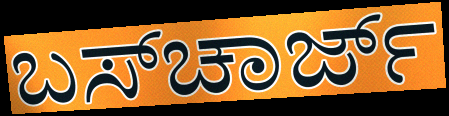
ಬಸ್‌ಚಾರ್ಜ್